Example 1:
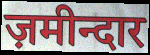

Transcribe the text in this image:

ज़मीन्दार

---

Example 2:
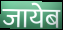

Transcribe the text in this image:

जायेब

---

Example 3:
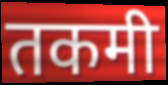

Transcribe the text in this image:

तकमी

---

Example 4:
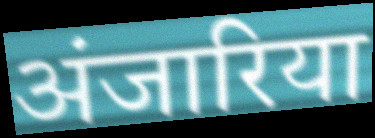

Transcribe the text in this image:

अंजारिया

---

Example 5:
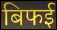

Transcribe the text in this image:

बिफई